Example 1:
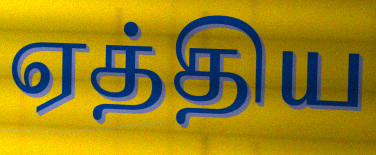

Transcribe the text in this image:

ஏத்திய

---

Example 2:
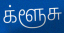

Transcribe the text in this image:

க்ளூசு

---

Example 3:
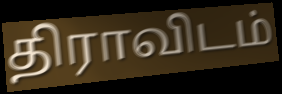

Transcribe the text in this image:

திராவிடம்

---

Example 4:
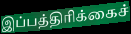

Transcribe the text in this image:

இப்பத்திரிக்கைச்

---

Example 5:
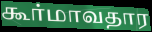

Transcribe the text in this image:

கூர்மாவதார